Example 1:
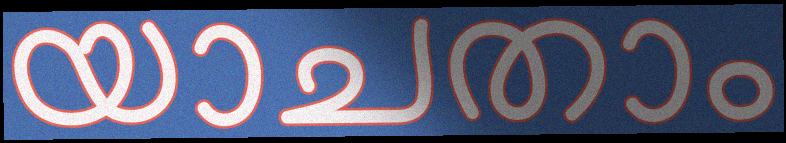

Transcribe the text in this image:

യാചതാം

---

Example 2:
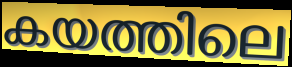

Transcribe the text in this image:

കയത്തിലെ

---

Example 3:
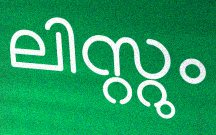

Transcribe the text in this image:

ലിസ്റ്റും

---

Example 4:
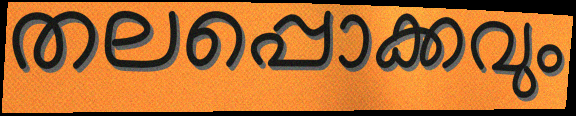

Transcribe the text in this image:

തലപ്പൊക്കവും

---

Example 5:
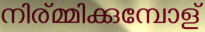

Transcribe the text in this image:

നിര്മ്മിക്കുമ്പോള്